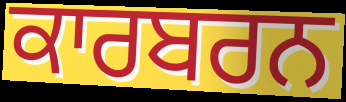
ਕਾਰਬਰਨ